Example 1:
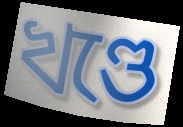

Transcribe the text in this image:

খণ্ডে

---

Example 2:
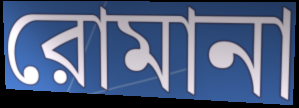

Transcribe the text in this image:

রোমানা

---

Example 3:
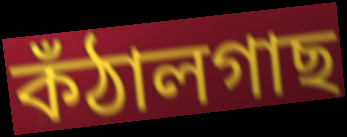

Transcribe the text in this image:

কঁঠালগাছ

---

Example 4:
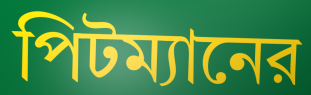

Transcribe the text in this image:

পিটম্যানের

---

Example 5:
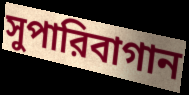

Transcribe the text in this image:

সুপারিবাগান